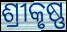
ଶ୍ରୀକୃଷ୍ଣ